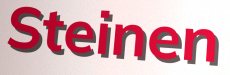
Steinen